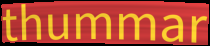
thummar